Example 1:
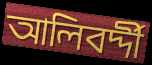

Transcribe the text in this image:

আলিবর্দ্দী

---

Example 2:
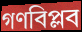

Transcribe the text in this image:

গণবিপ্লব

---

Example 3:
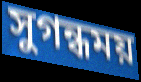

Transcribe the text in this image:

সুগন্ধময়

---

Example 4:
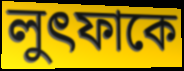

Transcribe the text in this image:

লুৎফাকে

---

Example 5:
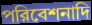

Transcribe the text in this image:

পরিবেশনাদি